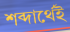
শব্দার্থেই